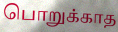
பொறுக்காத